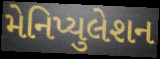
મેનિપ્યુલેશન